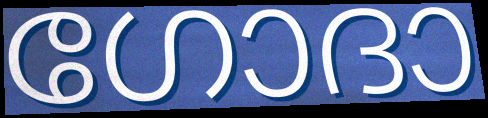
ഗോദാ